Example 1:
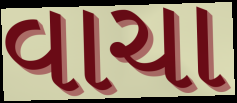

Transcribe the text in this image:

વાચા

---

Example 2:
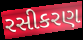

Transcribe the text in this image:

રસીકરણ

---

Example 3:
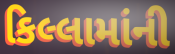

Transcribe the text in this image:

કિલ્લામાંની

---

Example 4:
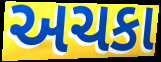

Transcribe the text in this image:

અચકા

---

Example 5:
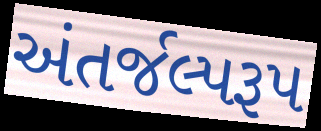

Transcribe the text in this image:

અંતર્જલ્પરૂપ